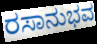
ರಸಾನುಭವ